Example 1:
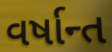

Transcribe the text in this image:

વર્ષાન્ત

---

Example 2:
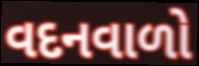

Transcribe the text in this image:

વદનવાળો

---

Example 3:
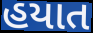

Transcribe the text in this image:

હયાત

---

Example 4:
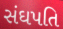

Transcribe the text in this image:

સંઘપતિ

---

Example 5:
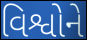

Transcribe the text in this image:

વિશ્વોને